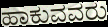
ಹಾಕುವವರು